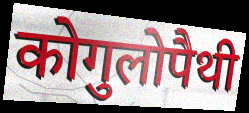
कोगुलोपैथी